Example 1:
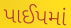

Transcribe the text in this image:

પાઈપમાં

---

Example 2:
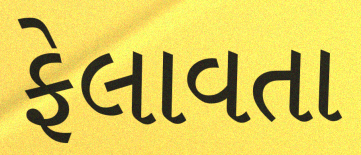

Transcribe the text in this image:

ફેલાવતા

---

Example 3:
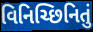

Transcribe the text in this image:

વિનિચ્છિનિતું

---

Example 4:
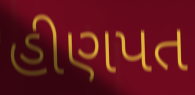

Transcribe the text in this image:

હીણપત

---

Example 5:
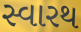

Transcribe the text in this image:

સ્વારથ